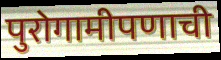
पुरोगामीपणाची